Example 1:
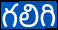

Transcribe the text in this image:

గలిగి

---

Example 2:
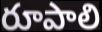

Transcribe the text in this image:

రూపాలి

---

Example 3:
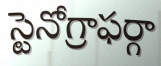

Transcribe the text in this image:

స్టెనోగ్రాఫర్గా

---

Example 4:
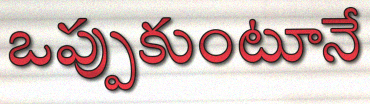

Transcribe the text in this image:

ఒప్పుకుంటూనే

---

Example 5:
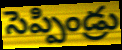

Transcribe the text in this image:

సెప్పిండ్రు